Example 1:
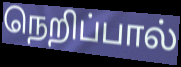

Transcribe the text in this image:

நெறிப்பால்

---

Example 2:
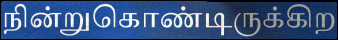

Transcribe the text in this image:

நின்றுகொண்டிருக்கிற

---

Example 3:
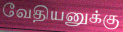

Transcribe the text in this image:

வேதியனுக்கு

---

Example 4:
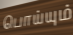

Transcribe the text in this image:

பொய்யும்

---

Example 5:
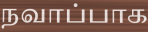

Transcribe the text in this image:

நவாப்பாக